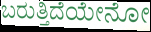
ಬರುತ್ತಿದೆಯೇನೋ